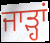
ਜਾੜ੍ਹਾਂ